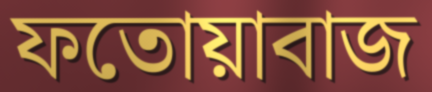
ফতোয়াবাজ